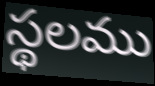
స్థలము